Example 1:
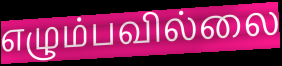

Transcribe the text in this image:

எழும்பவில்லை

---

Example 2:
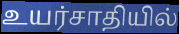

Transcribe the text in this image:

உயர்சாதியில்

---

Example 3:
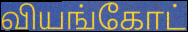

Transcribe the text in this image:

வியங்கோட்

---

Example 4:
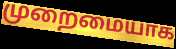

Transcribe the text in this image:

முறைமையாக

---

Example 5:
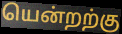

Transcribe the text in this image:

யென்றற்கு